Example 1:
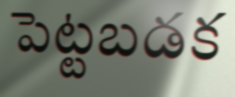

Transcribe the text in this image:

పెట్టబడక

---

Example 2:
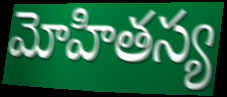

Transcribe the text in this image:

మోహితస్య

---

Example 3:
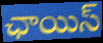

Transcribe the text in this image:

ఛాయిస్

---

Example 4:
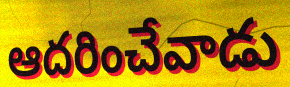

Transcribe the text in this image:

ఆదరించేవాడు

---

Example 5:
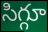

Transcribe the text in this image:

సిగ్గూ